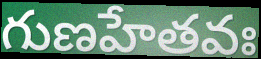
గుణహేతవః